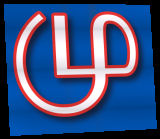
மு